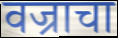
वज्राचा